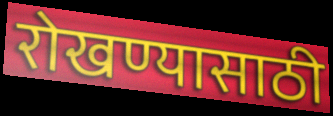
रोखण्यासाठी